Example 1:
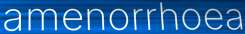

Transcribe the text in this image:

amenorrhoea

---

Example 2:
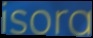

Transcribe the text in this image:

isora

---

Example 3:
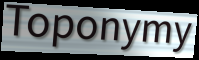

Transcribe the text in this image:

Toponymy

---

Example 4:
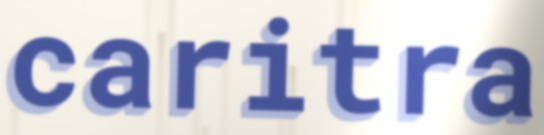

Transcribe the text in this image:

caritra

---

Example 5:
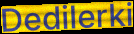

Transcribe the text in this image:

Dedilerki